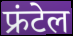
फ्रंटेल